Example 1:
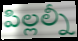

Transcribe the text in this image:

పిల్లల్నీ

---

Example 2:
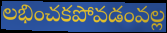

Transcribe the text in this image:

లభించకపోవడంవల్ల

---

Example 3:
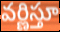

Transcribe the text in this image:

వర్ణిస్తూ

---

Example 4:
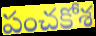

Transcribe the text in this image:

పంచకోశ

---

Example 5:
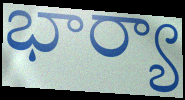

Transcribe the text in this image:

భార్యా